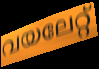
വയലേറ്റ്